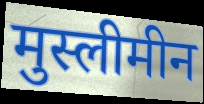
मुस्लीमीन